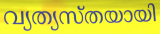
വ്യത്യസ്തയായി